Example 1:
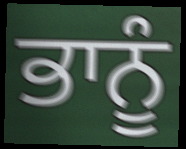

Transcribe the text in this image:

ਭਾਨੂੰ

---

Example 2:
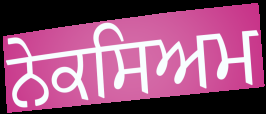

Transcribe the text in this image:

ਨੇਕਸਿਅਮ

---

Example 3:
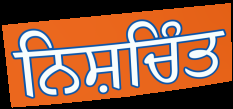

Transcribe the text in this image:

ਨਿਸ਼ਚਿੰਤ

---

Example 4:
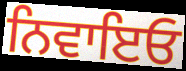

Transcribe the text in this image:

ਨਿਵਾਇਓ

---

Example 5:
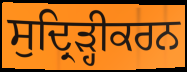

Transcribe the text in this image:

ਸੁਦ੍ਰਿੜ੍ਹੀਕਰਨ